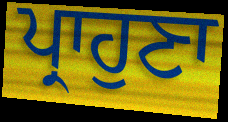
ਪ੍ਰਾਹੁਣਾ